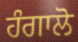
ਹੰਗਾਲੋ